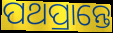
ପଥପ୍ରାନ୍ତେ